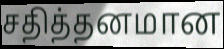
சதித்தனமான